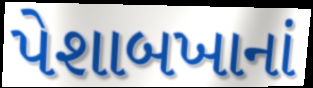
પેશાબખાનાં